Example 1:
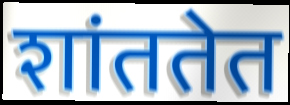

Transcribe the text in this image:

शांततेत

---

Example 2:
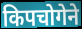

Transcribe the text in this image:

किपचोगेने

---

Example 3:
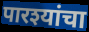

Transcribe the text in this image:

पारश्यांचा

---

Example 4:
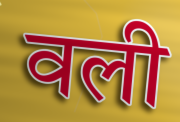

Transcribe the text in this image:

वली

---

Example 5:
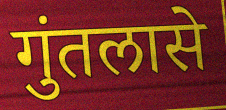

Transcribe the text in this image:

गुंतलासे